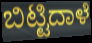
ಬಿಟ್ಟಿದಾಳೆ